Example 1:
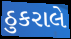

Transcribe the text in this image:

ઠુકરાલે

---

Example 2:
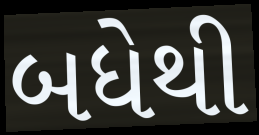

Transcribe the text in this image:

બધેથી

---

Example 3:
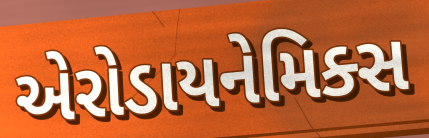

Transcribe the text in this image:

એરોડાયનેમિક્સ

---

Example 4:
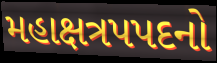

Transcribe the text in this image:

મહાક્ષત્રપપદનો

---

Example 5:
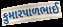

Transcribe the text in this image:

કુમારપાળભાઈ